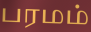
பரமம்